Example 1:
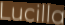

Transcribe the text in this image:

Lucilla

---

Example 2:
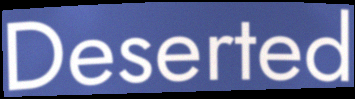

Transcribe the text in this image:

Deserted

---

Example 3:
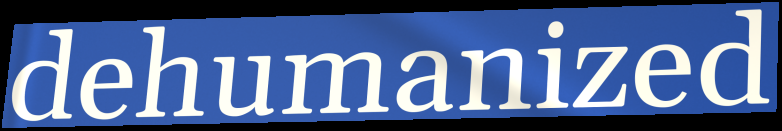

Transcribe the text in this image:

dehumanized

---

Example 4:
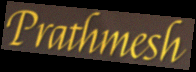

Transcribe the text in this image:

Prathmesh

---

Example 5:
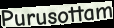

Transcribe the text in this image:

Purusottam